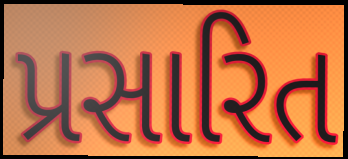
પ્રસારિત